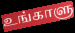
உங்காளு